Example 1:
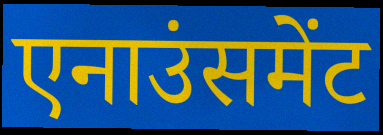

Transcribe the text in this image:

एनाउंसमेंट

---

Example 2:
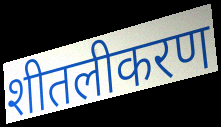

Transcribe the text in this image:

शीतलीकरण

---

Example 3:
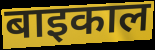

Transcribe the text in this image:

बाइकाल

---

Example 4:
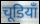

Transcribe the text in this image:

चूडियाँ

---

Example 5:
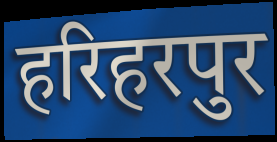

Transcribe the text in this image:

हरिहरपुर